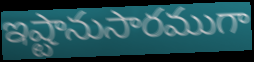
ఇష్టానుసారముగా